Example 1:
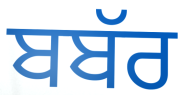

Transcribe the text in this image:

ਬਬੱਰ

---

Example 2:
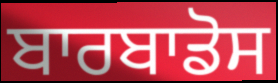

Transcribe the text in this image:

ਬਾਰਬਾਡੋਸ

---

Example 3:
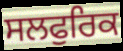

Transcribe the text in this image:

ਸਲਫੁਰਿਕ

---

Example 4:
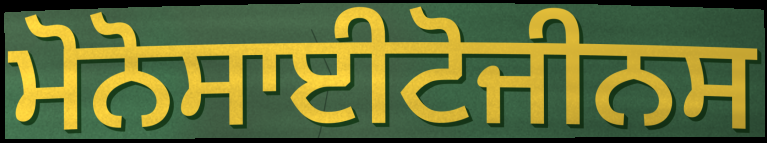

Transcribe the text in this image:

ਮੋਨੋਸਾਈਟੋਜੀਨਸ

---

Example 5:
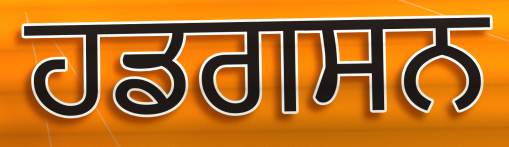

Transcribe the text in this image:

ਹਡਗਸਨ